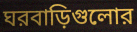
ঘরবাড়িগুলোর